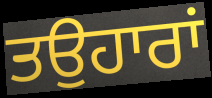
ਤਉਹਾਰਾਂ